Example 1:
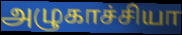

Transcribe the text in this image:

அழுகாச்சியா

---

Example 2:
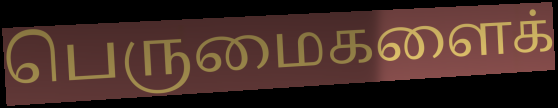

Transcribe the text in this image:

பெருமைகளைக்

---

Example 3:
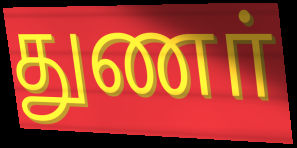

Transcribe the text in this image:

துணர்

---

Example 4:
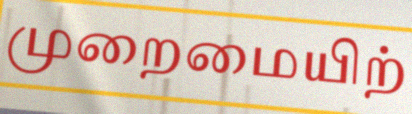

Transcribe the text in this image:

முறைமையிற்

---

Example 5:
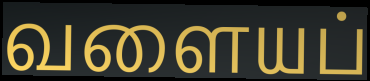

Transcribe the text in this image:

வளையப்